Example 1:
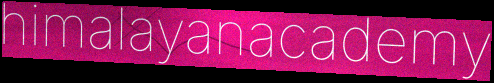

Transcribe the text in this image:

himalayanacademy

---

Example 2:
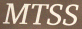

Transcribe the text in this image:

MTSS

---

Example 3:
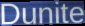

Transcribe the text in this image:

Dunite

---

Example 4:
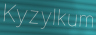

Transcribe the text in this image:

Kyzylkum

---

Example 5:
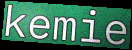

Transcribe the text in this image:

kemie